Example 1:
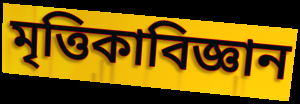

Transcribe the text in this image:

মৃত্তিকাবিজ্ঞান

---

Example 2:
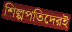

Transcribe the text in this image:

শিল্পপতিদেরই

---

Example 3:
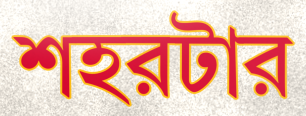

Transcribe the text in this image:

শহরটার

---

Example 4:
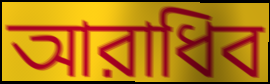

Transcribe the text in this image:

আরাধিব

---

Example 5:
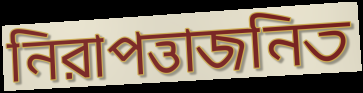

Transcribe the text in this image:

নিরাপত্তাজনিত